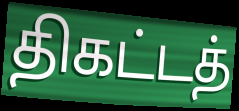
திகட்டத்